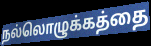
நல்லொழுக்கத்தை